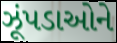
ઝૂંપડાઓને